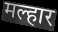
मल्हार